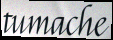
tumache